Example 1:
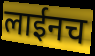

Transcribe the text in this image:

लाईनच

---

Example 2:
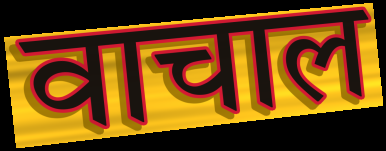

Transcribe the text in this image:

वाचाल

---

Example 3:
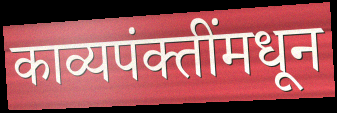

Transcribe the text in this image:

काव्यपंक्तींमधून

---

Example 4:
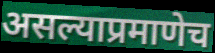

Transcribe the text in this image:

असल्याप्रमाणेच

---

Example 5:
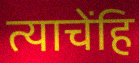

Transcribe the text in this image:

त्याचेंहि